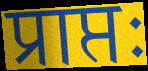
प्राप्तः